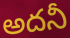
అదనీ